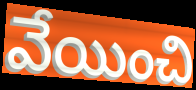
వేయించి